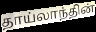
தாய்லாந்தின்